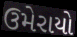
ઉમેરાયો